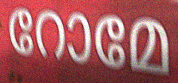
റോമേ